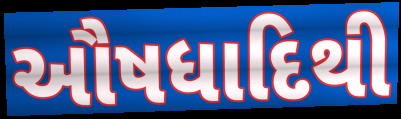
ઔષધાદિથી